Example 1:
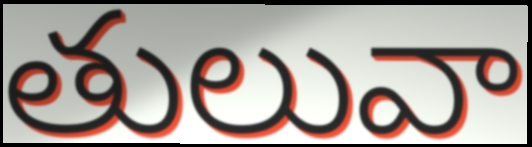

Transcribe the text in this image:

తులువా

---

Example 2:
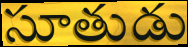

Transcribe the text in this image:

సూతుడు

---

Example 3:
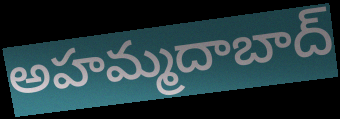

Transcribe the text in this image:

అహమ్మదాబాద్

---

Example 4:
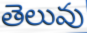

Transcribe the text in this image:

తెలువు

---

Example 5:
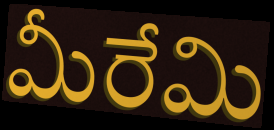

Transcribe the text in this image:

మీరేమి